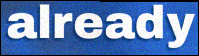
already